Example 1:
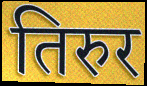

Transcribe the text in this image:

तिरुर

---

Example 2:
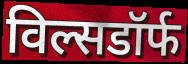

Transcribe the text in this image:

विल्सडॉर्फ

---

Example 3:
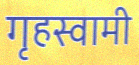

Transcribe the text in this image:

गृहस्वामी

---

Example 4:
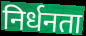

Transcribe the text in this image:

निर्धनता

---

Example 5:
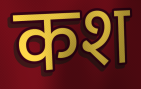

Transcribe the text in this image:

कश